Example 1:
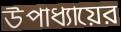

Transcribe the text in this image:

উপাধ্যায়ের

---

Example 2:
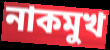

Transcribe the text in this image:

নাকমুখ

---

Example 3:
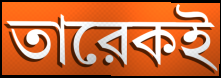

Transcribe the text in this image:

তারেকই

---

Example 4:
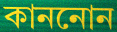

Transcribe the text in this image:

কাননোন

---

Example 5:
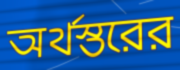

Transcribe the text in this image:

অর্থস্তরের